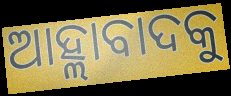
ଆହ୍ଲାବାଦକୁ